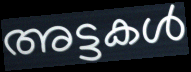
അട്ടകൾ